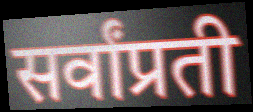
सर्वांप्रती